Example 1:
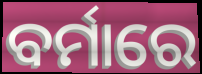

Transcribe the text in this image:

ବର୍ମାରେ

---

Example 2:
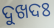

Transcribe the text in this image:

ଦୁଖଦଃ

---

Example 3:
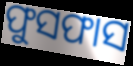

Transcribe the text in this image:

ଫୁସଫାସ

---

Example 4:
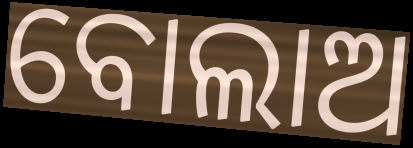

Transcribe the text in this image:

ବୋଲାଅ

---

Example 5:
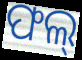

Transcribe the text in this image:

ଫଲ୍